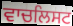
ਵਾਚਲਿਸਟ